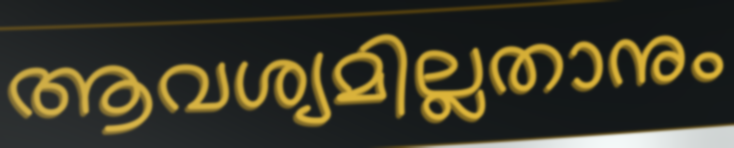
ആവശ്യമില്ലതാനും